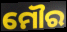
ମୌର